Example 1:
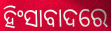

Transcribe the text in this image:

ହିଂସାବାଦରେ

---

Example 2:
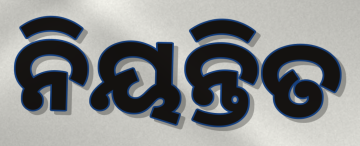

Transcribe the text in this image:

ନିୟନ୍ତିତ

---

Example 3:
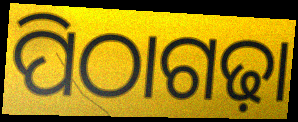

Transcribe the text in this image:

ପିଠାଗଢ଼ା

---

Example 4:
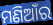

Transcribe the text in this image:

ମଣିଆଁର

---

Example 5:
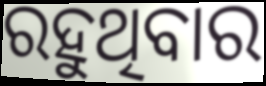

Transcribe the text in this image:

ରହୁଥିବାର